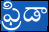
ఫ్రిడా